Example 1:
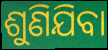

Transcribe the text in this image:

ଶୁଣିଯିବା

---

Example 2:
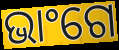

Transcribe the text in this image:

ଭାଂଗେ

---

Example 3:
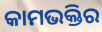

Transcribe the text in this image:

କାମଭକ୍ତିର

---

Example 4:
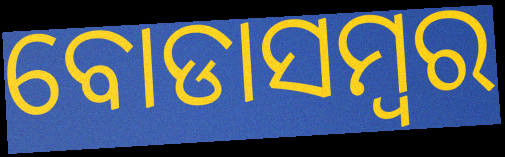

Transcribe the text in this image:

ବୋଡାସମ୍ବର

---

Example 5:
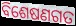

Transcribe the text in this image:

ବିଶେଷଣଗତ